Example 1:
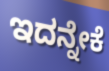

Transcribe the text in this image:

ಇದನ್ನೇಕೆ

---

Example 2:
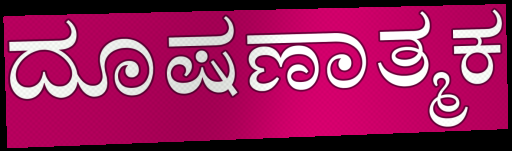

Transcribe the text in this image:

ದೂಷಣಾತ್ಮಕ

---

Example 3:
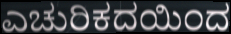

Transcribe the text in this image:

ಎಚುರಿಕದಯಿಂದ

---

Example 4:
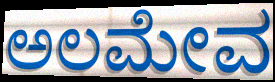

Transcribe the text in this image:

ಅಲಮೇವ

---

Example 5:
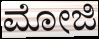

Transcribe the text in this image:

ಮೋಜಿ